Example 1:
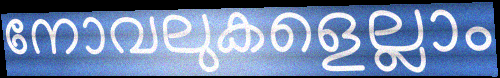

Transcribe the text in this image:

നോവലുകളെല്ലാം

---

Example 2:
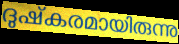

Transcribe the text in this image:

ദുഷ്‌കരമായിരുന്നു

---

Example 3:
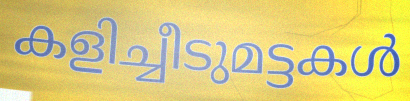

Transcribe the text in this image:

കളിച്ചീടുമട്ടകൾ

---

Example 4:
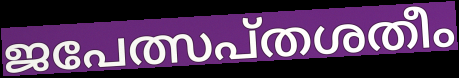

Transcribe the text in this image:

ജപേത്സപ്തശതീം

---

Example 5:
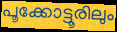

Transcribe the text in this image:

പൂക്കോട്ടൂരിലും